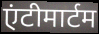
एंटीमार्टम